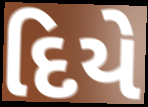
દિયે